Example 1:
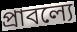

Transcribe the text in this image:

প্রাবল্যে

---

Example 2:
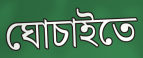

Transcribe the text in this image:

ঘোচাইতে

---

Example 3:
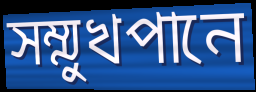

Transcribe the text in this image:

সম্মুখপানে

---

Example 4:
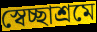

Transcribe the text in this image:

স্বেচ্ছাশ্রমে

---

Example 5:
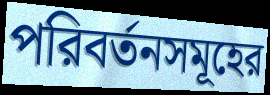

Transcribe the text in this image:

পরিবর্তনসমূহের